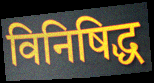
विनिषिद्ध